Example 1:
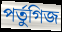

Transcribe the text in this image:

পর্তুগিজ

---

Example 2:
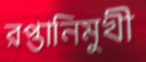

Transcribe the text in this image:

রপ্তানিমুখী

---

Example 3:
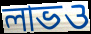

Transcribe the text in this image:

লাভও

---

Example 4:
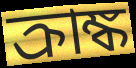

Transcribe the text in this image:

ক্রাঙ্ক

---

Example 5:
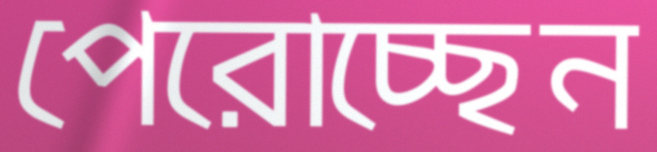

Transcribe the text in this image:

পেরোচ্ছেন